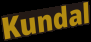
Kundal